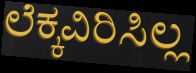
ಲೆಕ್ಕವಿರಿಸಿಲ್ಲ